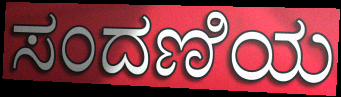
ಸಂದಣಿಯ